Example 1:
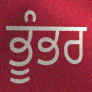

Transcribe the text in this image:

ਭੂੰਭਰ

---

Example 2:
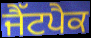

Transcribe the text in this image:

ਜੈੱਟਪੈਕ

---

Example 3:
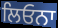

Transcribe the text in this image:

ਲਿਓਨਾ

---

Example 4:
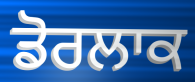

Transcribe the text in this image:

ਡੋਰਲਾਕ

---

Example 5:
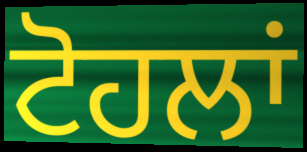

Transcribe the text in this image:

ਟੋਹਲਾਂ